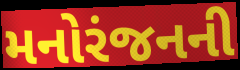
મનોરંજનની